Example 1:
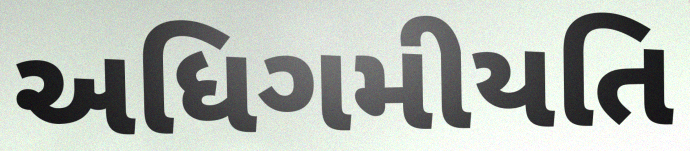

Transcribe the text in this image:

અધિગમીયતિ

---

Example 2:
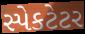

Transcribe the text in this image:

સ્પેકટેટર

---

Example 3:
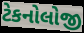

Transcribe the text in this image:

ટેકનોલોજી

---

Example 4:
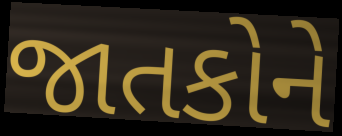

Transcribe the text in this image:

જાતકોને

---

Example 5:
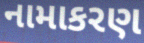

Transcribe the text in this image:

નામાકરણ